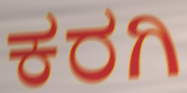
ಕರಗಿ